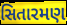
સિતારમણ